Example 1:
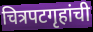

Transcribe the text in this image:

चित्रपटगृहांची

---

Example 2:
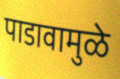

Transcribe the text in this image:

पाडावामुळे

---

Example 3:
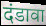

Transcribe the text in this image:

दंडावा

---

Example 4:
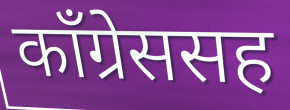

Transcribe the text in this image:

काँग्रेससह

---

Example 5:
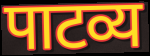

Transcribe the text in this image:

पाटव्य